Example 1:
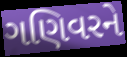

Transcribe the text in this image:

ગણિવરને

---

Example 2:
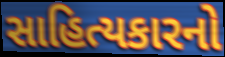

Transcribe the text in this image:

સાહિત્યકારનો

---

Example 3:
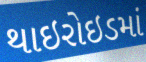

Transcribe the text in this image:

થાઇરોઇડમાં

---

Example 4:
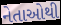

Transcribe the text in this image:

નેતાઓથી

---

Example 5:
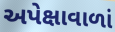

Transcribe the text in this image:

અપેક્ષાવાળાં